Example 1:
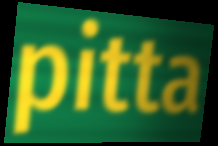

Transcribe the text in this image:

pitta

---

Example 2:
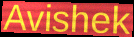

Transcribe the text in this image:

Avishek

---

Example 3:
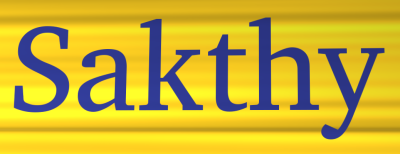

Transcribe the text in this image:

Sakthy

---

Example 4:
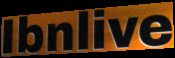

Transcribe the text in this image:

Ibnlive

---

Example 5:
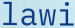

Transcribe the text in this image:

lawi